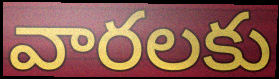
వారలకు